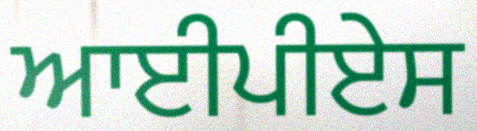
ਆਈਪੀਏਸ